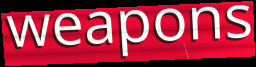
weapons